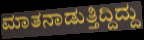
ಮಾತನಾಡುತ್ತಿದ್ದಿದ್ದು